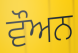
ਵੌਅਨ